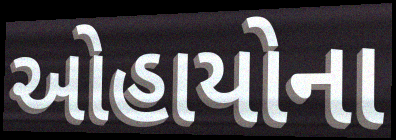
ઓહાયોના